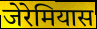
जेरेमियास